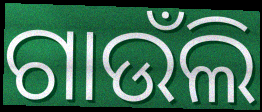
ଗାଉଁଲି